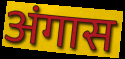
अंगास